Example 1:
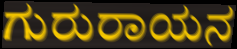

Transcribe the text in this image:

ಗುರುರಾಯನ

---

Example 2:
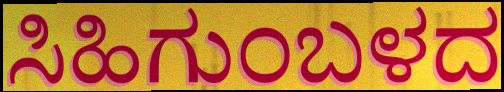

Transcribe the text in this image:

ಸಿಹಿಗುಂಬಳದ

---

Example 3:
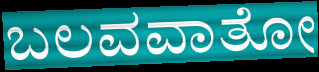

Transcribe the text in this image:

ಬಲವವಾತೋ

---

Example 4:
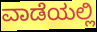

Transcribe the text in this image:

ವಾಡೆಯಲ್ಲಿ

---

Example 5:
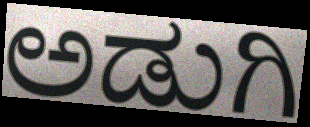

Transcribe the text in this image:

ಅಡುಗಿ